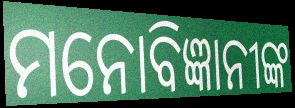
ମନୋବିଜ୍ଞାନୀଙ୍କ